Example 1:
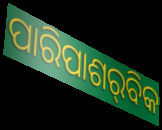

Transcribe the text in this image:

ପାରିପାଶର୍‌ବିକ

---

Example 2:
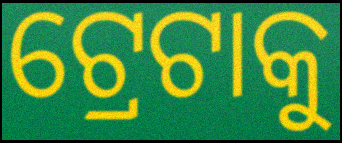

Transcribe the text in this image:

ଟ୍ରେଟାକୁ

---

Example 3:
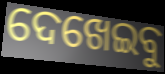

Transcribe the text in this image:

ଦେଖେଇବୁ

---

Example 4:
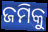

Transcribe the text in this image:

ଜମିକୁ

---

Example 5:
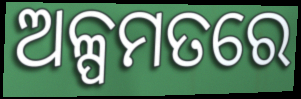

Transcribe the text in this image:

ଅଳ୍ପମତରେ